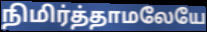
நிமிர்த்தாமலேயே